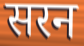
सरन